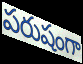
పరుషంగా